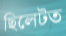
ছিলেটত